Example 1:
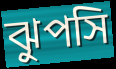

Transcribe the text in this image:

ঝুপসি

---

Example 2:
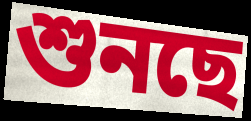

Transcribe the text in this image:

শুনছে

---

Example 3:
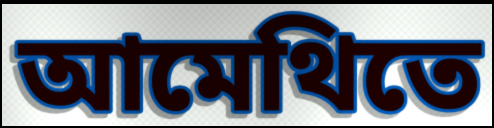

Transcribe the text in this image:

আমেথিতে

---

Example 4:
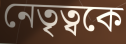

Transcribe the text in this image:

নেতৃত্বকে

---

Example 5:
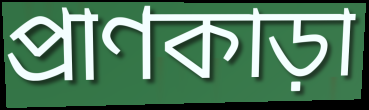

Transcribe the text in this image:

প্রাণকাড়া